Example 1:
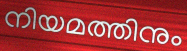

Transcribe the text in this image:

നിയമത്തിനും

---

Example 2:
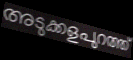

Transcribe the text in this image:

അടുക്കളപുറത്ത്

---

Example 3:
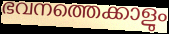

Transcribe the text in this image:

ഭവനത്തെക്കാളും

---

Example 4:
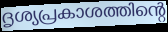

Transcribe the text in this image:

ദൃശ്യപ്രകാശത്തിന്റെ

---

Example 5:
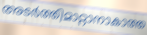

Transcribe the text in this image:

അടർത്തിമാറ്റാനാകാത്ത